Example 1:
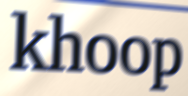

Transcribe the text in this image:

khoop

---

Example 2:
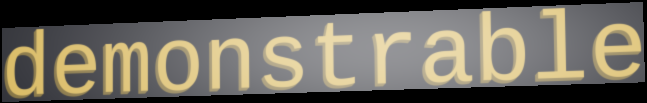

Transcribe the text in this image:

demonstrable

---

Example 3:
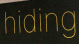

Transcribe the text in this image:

hiding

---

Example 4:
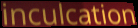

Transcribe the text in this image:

inculcation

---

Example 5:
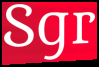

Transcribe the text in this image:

Sgr